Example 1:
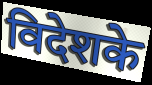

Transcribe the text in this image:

विदेशके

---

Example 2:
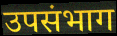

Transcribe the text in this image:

उपसंभाग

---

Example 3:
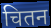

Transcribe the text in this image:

चितन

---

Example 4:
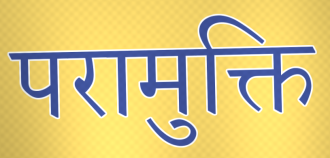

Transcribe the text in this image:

परामुक्ति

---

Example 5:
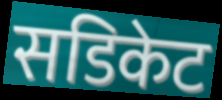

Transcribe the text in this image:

सडिकेट